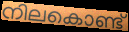
നിലകൊണ്ട്